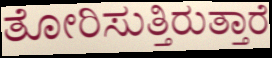
ತೋರಿಸುತ್ತಿರುತ್ತಾರೆ